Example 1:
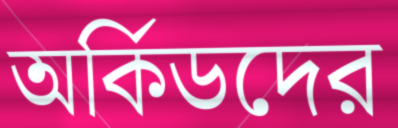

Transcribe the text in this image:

অর্কিডদের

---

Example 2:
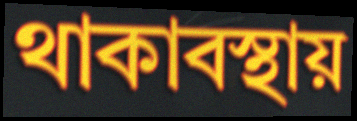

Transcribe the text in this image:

থাকাবস্থায়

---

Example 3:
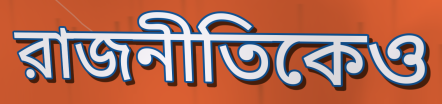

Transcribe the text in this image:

রাজনীতিকেও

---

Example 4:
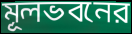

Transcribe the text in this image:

মূলভবনের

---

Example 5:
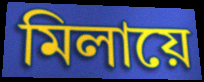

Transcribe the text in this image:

মিলায়ে